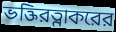
ভক্তিরত্নাকরের